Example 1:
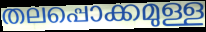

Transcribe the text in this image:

തലപ്പൊക്കമുള്ള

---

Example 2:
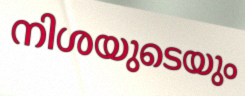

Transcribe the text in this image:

നിശയുടെയും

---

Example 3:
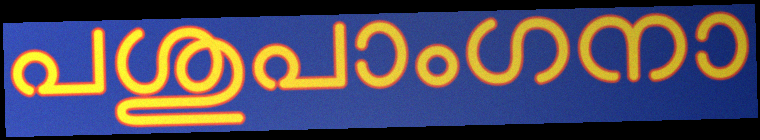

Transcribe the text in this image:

പശുപാംഗനാ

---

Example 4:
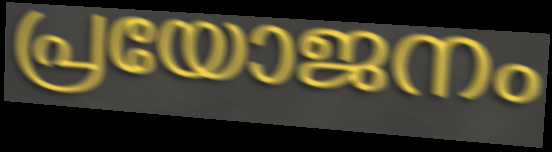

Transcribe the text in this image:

പ്രയോജനം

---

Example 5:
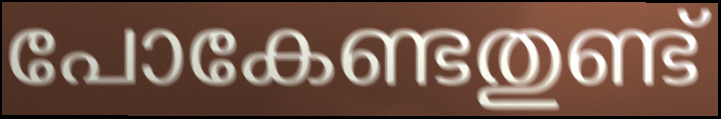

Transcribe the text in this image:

പോകേണ്ടതുണ്ട്